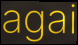
agai